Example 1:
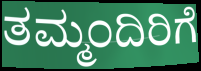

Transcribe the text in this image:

ತಮ್ಮಂದಿರಿಗೆ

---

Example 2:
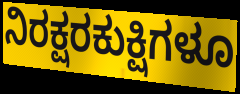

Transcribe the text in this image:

ನಿರಕ್ಷರಕುಕ್ಷಿಗಳೂ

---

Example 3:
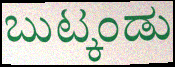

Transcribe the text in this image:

ಬುಟ್ಕಂಡು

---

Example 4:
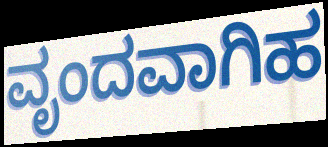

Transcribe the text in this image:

ವೃಂದವಾಗಿಹ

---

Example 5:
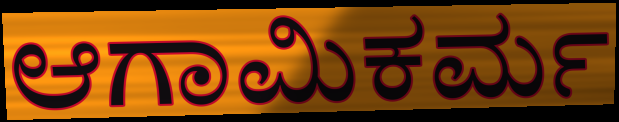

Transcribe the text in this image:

ಆಗಾಮಿಕರ್ಮ